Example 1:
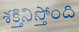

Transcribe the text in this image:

శక్తినిస్తోంది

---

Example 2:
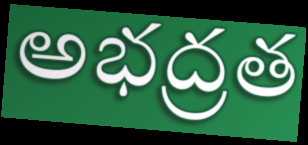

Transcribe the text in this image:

అభద్రత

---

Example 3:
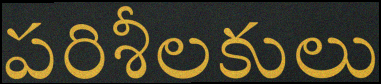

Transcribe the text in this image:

పరిశీలకులు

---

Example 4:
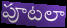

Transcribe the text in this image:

పూటలా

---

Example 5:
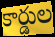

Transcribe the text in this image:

కార్డుల